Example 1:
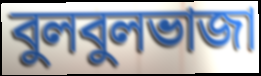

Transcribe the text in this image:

বুলবুলভাজা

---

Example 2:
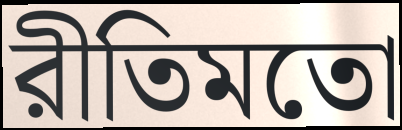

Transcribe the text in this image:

রীতিমতো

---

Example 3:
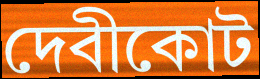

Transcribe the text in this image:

দেবীকোট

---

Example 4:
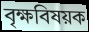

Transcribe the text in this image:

বৃক্ষবিষয়ক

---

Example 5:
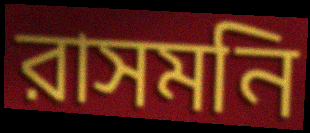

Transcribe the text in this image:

রাসমনি